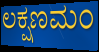
ಲಕ್ಷಣಮಂ